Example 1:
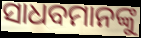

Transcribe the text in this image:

ସାଧବମାନଙ୍କୁ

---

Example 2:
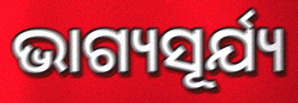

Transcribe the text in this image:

ଭାଗ୍ୟସୂର୍ଯ୍ୟ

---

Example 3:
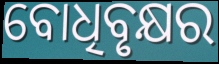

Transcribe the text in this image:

ବୋଧିବୃକ୍ଷର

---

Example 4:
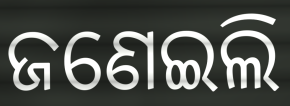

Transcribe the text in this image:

ଜଣେଇଲି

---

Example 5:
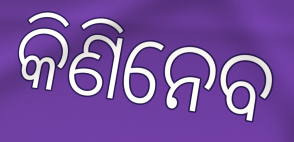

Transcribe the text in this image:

କିଣିନେବ